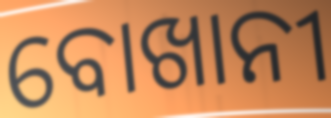
ବୋଖାନୀ